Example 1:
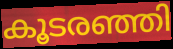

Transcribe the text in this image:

കൂടരഞ്ഞി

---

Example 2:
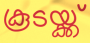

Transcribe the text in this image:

കൂടയ്ക്ക്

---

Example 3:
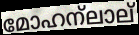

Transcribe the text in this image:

മോഹന്ലാല്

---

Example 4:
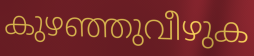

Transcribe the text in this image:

കുഴഞ്ഞുവീഴുക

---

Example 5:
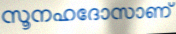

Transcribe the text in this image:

സൂനഹദോസാണ്